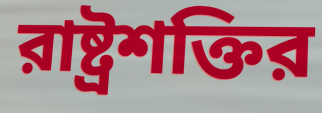
রাষ্ট্রশক্তির